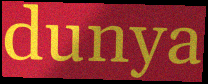
dunya